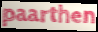
paarthen